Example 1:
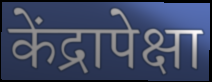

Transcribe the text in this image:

केंद्रापेक्षा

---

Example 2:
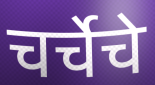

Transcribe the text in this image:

चर्चेचे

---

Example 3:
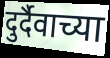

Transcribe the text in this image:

दुर्दैवाच्या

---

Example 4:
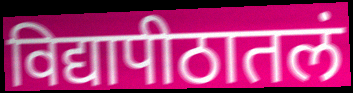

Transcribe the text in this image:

विद्यापीठातलं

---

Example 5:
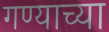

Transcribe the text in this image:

गण्याच्या